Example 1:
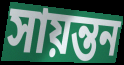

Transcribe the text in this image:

সায়ন্তন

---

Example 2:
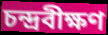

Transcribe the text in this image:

চন্দ্রবীক্ষণ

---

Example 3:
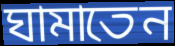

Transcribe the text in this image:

ঘামাতেন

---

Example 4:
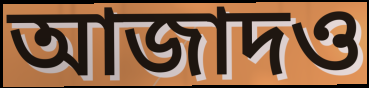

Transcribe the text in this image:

আজাদও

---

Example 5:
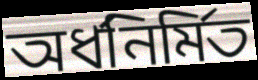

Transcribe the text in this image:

অর্ধনির্মিত